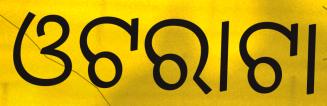
ଓଟରାଟା